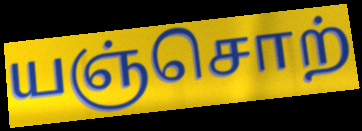
யஞ்சொற்